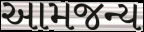
આમજન્ય